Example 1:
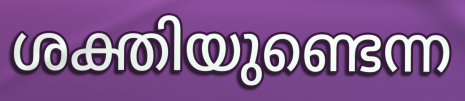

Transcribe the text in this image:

ശക്തിയുണ്ടെന്ന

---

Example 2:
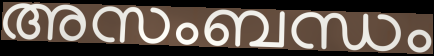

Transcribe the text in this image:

അസംബന്ധം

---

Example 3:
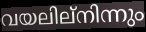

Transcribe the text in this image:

വയലില്നിന്നും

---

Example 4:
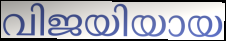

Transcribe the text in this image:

വിജയിയായ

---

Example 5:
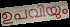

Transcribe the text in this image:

ഉപവിയും